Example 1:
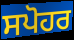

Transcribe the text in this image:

ਸਪੋਹਰ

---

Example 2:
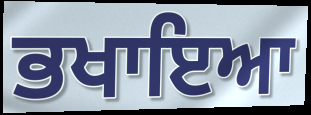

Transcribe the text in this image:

ਭਖਾਇਆ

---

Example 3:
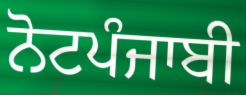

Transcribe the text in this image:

ਨੋਟਪੰਜਾਬੀ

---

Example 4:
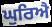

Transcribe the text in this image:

ਘੁਰਿਐ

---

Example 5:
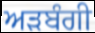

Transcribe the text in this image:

ਅੜਬੰਗੀ